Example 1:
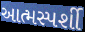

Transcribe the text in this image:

આત્મસ્પર્શી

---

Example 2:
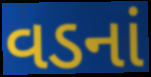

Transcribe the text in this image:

વડનાં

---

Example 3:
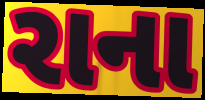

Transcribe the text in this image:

રાના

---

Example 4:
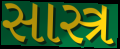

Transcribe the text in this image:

સાસ્ત્ર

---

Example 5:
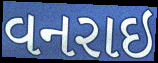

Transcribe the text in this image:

વનરાઇ